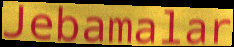
Jebamalar